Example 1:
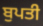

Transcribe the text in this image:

ਬੁਪਤੀ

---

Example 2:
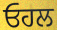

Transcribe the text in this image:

ਓਹਲ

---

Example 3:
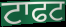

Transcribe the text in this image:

ਟਾਫਟ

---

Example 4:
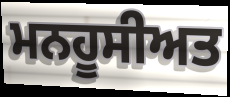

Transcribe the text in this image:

ਮਨਹੂਸੀਅਤ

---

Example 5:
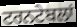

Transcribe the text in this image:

ਟਰਨਟੇਬਲਾਂ